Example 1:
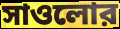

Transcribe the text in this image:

সাওলোর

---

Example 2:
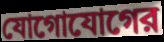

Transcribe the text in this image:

যোগোযোগের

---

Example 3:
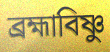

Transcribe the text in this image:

ব্রহ্মাবিষ্ণু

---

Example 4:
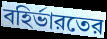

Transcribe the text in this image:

বহির্ভারতের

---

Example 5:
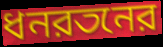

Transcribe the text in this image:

ধনরতনের